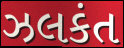
ઝલકંત